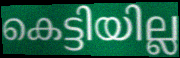
കെട്ടിയില്ല